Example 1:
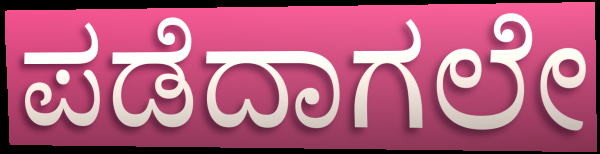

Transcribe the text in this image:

ಪಡೆದಾಗಲೇ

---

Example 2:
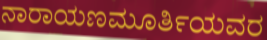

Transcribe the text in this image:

ನಾರಾಯಣಮೂರ್ತಿಯವರ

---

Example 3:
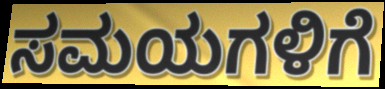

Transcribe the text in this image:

ಸಮಯಗಳಿಗೆ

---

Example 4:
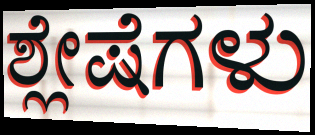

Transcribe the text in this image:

ಶ್ಲೇಷೆಗಳು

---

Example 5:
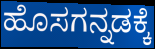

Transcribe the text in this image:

ಹೊಸಗನ್ನಡಕ್ಕೆ